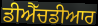
ਡੀਐੱਚਡੀਆਰ